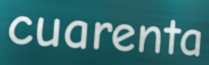
cuarenta